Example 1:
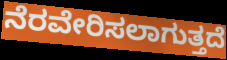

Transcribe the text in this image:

ನೆರವೇರಿಸಲಾಗುತ್ತದೆ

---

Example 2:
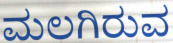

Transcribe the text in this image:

ಮಲಗಿರುವ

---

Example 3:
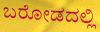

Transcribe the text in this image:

ಬರೋಡದಲ್ಲಿ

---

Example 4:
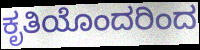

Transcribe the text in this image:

ಕೃತಿಯೊಂದರಿಂದ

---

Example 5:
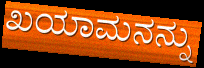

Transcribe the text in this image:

ಖಯಾಮನನ್ನು